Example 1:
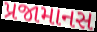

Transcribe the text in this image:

પ્રજામાનસ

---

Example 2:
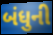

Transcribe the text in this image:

બંધુની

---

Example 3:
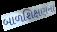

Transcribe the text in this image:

બાળશિક્ષણના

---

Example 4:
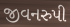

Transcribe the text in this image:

જીવનરુપી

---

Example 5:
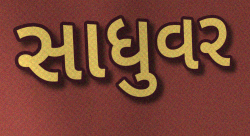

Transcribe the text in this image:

સાધુવર